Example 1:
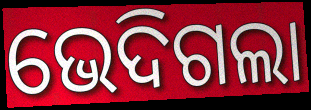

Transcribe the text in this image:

ଭେଦିଗଲା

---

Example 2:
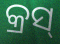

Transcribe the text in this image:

କ୍ରସ୍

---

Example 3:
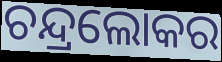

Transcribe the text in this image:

ଚନ୍ଦ୍ରଲୋକର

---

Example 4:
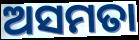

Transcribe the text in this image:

ଅସମତା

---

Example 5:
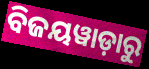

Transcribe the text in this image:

ବିଜୟୱାଡ଼ାରୁ